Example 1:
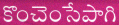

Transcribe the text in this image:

కొంచెంసేపాగి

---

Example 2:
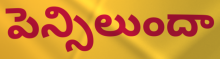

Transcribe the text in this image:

పెన్సిలుందా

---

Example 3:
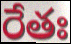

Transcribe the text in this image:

రేతః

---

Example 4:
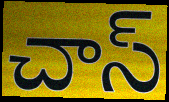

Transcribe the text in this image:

చాస్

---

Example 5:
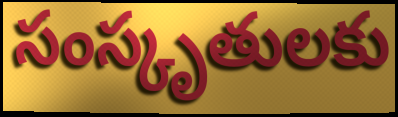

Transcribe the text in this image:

సంస్కృతులకు